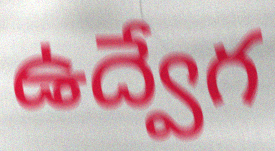
ఉద్వేగ